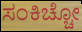
ಸಂಕಿಚ್ಚೋ